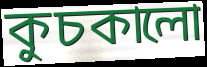
কুচকালো